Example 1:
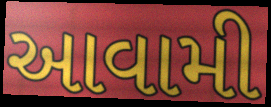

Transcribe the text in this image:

આવામી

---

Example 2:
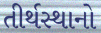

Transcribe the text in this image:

તીર્થસ્થાનો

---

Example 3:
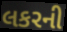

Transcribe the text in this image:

લકરની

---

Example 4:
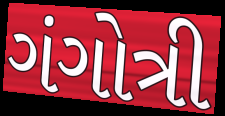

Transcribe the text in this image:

ગંગોત્રી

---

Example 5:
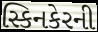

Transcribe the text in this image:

સ્કિનકેરની